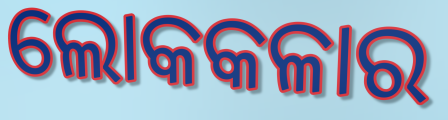
ଲୋକକଳାର